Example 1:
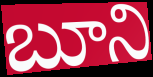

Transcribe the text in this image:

బూని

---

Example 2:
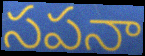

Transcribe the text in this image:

సపనా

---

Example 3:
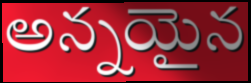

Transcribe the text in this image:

అన్నయైన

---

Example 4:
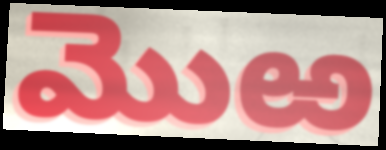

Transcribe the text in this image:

మొఱ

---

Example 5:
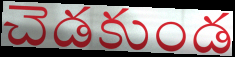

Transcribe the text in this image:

చెడకుండ